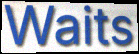
Waits